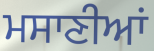
ਮਸਾਣੀਆਂ